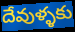
దేవుళ్ళకు